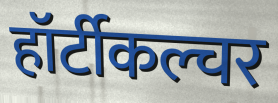
हॉर्टीकल्चर